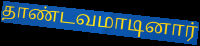
தாண்டவமாடினார்